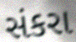
સંકરા